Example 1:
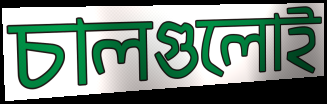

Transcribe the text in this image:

চালগুলোই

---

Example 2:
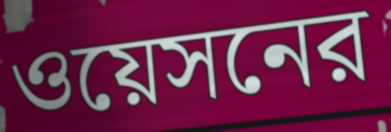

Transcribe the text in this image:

ওয়েসনের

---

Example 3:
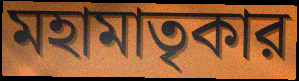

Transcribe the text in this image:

মহামাতৃকার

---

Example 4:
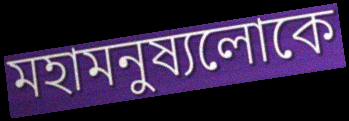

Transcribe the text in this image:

মহামনুষ্যলোকে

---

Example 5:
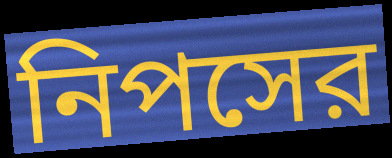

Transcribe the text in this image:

নিপসের